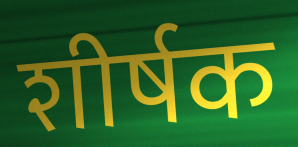
शीर्षक